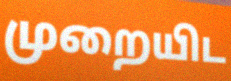
முறையிட